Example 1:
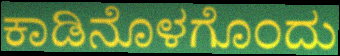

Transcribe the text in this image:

ಕಾಡಿನೊಳಗೊಂದು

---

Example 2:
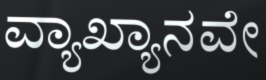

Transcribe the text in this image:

ವ್ಯಾಖ್ಯಾನವೇ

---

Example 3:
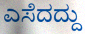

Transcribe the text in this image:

ಎಸೆದದ್ದು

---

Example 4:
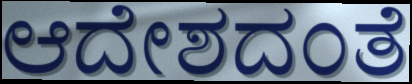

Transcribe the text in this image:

ಆದೇಶದಂತೆ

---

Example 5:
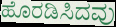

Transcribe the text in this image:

ಹೊರಡಿಸಿದವು